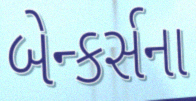
બેન્કર્સના